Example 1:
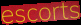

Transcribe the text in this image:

escorts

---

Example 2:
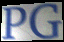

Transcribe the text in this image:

PG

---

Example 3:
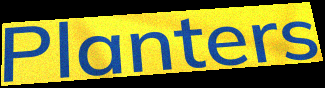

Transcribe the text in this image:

Planters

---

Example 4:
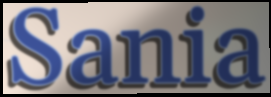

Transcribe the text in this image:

Sania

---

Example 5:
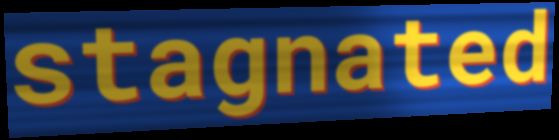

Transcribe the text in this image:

stagnated